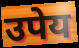
उपेय